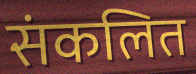
संकलित